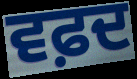
ਵਫ਼ਦ